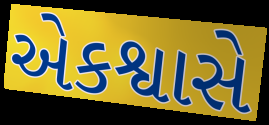
એકશ્વાસે